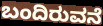
ಬಂದಿರುವನೆ